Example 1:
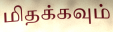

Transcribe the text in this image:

மிதக்கவும்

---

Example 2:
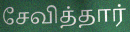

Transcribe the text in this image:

சேவித்தார்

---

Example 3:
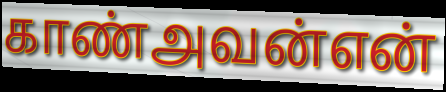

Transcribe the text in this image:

காண்அவன்என்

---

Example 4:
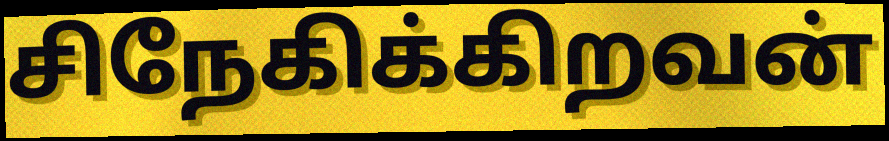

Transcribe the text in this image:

சிநேகிக்கிறவன்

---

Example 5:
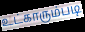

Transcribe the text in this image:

உட்காரும்படி